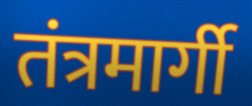
तंत्रमार्गी